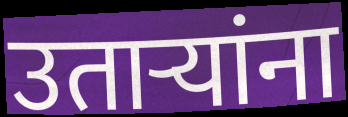
उताऱ्यांना